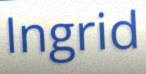
Ingrid